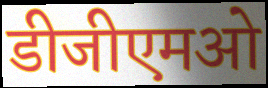
डीजीएमओ